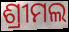
ଶ୍ରୀମଲ